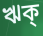
ঋক্